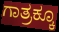
ಗಾತ್ರಕ್ಕೂ